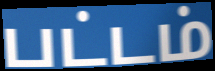
பட்டம்